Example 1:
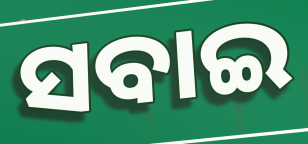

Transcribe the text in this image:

ସବାଇ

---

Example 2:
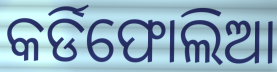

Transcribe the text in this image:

କର୍ଡିଫୋଲିଆ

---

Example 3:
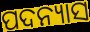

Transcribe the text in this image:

ପଦନ୍ୟାସ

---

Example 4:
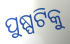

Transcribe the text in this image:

ପୁଷ୍ପଟିକୁ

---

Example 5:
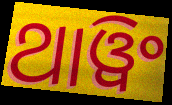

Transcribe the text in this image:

ଥାୱିଂ